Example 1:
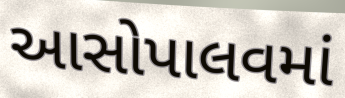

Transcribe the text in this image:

આસોપાલવમાં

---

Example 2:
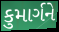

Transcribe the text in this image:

કુમાર્ગને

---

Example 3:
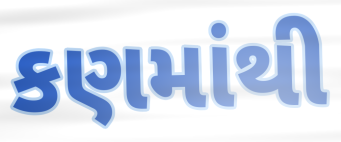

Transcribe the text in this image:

કણમાંથી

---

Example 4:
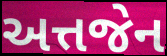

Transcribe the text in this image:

અત્તજેન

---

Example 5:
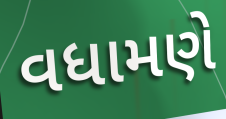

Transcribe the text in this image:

વધામણે